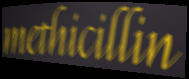
methicillin